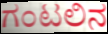
ಗಂಟಲಿನ